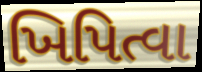
ખિપિત્વા